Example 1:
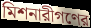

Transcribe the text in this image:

মিশনারীগণের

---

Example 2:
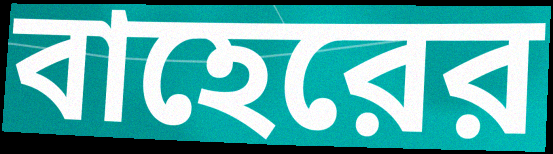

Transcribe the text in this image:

বাহেরের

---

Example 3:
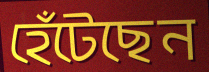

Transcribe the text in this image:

হেঁটেছেন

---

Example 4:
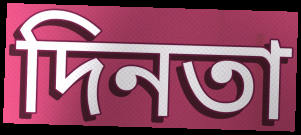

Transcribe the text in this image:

দিনতা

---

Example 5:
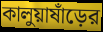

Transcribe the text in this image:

কালুয়াষাঁড়ের